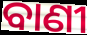
ବାଣୀ